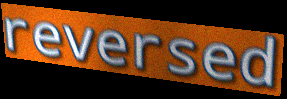
reversed